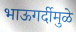
भाऊगर्दीमुळे